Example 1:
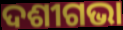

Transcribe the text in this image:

ଦଶୀଗଭା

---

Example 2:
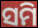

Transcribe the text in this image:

ସମି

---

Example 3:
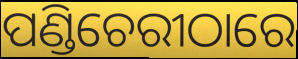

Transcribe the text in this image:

ପଣ୍ଡିଚେରୀଠାରେ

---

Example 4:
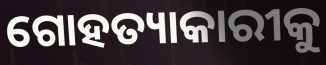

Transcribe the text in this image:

ଗୋହତ୍ୟାକାରୀକୁ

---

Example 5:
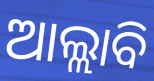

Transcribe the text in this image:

ଆଲ୍ଲାବି